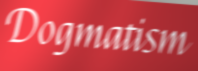
Dogmatism